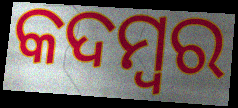
କଦମ୍ବର